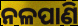
ନଳପାଣି